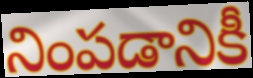
నింపడానికీ